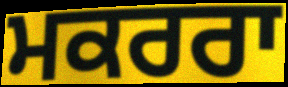
ਮਕਰਰਾ